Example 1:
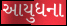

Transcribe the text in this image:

આયુધના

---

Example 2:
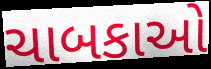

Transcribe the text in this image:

ચાબકાઓ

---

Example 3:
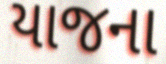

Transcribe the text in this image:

યાજના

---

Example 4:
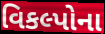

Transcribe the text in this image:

વિકલ્પોના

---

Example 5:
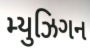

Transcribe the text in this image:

મ્યુઝિગન